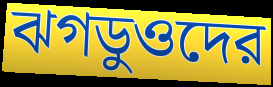
ঝগডুওদের